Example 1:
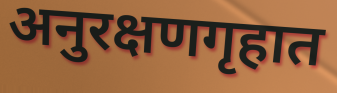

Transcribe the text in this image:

अनुरक्षणगृहात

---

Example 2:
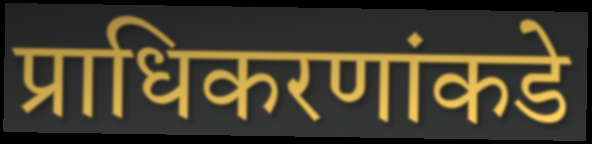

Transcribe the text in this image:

प्राधिकरणांकडे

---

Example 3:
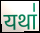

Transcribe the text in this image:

यथा॑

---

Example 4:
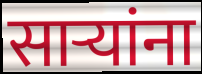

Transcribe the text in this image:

सार्‍यांना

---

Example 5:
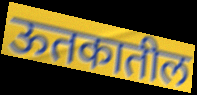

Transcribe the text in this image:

ऊतकातील